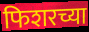
फिशरच्या